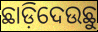
ଛାଡ଼ିଦେଉଛୁ